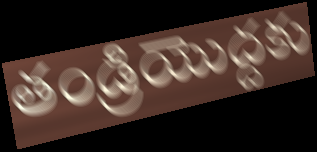
తండ్రియొద్దకు